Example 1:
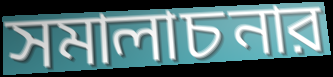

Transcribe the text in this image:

সমালাচনার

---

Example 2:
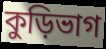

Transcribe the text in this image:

কুড়িভাগ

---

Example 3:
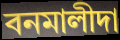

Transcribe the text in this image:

বনমালীদা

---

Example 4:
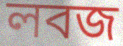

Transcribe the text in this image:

লবজ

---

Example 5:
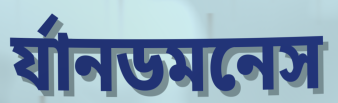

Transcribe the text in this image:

র্যানডমনেস